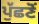
ਪੁੱਛਣੋਂ